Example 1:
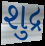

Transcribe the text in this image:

શુદ્ર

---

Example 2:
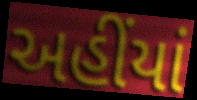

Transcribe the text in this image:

અહીંયાં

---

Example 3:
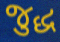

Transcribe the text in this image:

જુદ્ધ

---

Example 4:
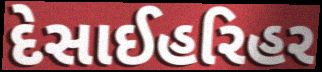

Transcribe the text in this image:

દેસાઈહરિહર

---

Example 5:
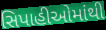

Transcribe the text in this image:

સિપાહીઓમાંથી